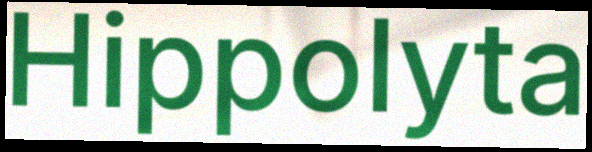
Hippolyta